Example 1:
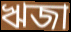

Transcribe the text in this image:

ঋজা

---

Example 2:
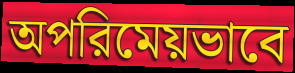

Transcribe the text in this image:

অপরিমেয়ভাবে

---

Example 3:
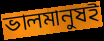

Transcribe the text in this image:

ভালমানুষই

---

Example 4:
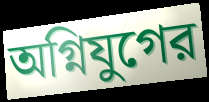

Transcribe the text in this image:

অগ্নিযুগের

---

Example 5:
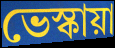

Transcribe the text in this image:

ভেস্কায়া